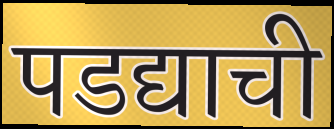
पडद्याची